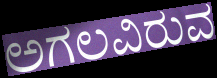
ಅಗಲವಿರುವ